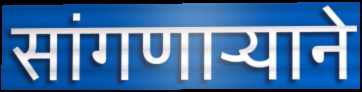
सांगणार्‍याने